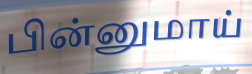
பின்னுமாய்